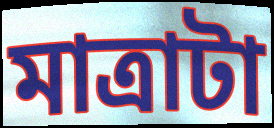
মাত্রাটা